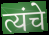
त्यंचे